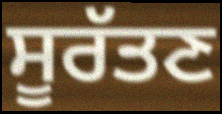
ਸੂਰੱਤਣ